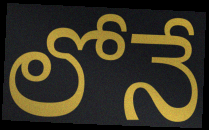
లోనే